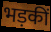
भड़कीं